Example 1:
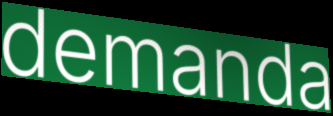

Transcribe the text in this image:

demanda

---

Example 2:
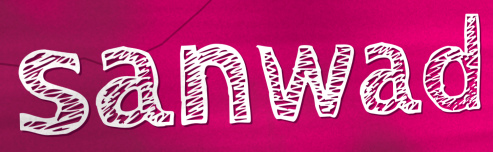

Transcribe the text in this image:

sanwad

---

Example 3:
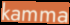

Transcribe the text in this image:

kamma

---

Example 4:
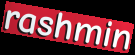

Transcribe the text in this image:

rashmin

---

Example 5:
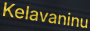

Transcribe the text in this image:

Kelavaninu